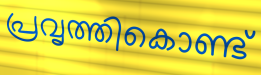
പ്രവൃത്തികൊണ്ട്